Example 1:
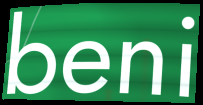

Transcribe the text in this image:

beni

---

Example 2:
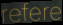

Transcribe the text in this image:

refere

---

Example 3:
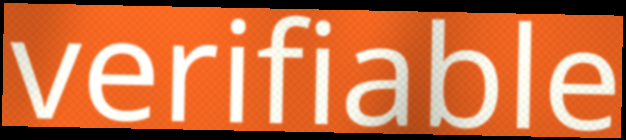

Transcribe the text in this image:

verifiable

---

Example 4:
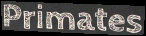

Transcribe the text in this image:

Primates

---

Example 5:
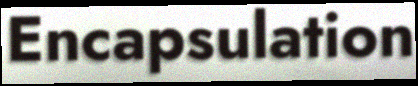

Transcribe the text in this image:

Encapsulation